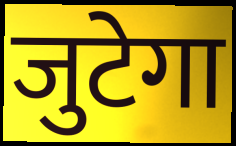
जुटेगा